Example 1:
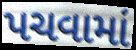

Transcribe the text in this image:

પચવામાં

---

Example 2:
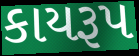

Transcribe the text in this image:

કાયરૂપ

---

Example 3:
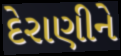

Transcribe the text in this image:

દેરાણીને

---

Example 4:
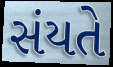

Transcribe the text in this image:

સંયતે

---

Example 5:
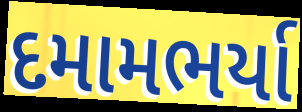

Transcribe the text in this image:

દમામભર્યા